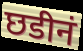
छडीनं